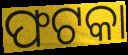
ଫଟକା